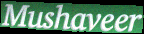
Mushaveer